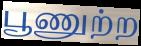
பூணுற்ற